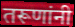
तरूणांनी